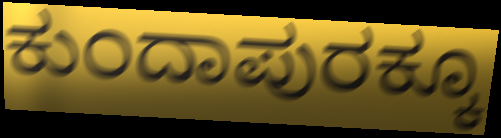
ಕುಂದಾಪುರಕ್ಕೂ